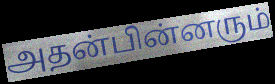
அதன்பின்னரும்